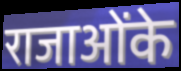
राजाओंके